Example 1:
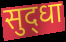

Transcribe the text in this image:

सुद्धा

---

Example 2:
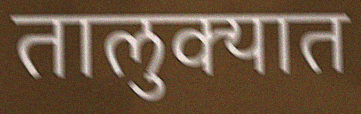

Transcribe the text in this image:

तालुक्यात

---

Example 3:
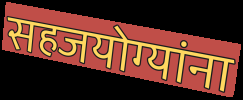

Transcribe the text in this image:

सहजयोग्यांना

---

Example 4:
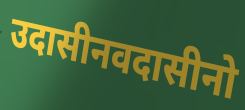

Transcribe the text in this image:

उदासीनवदासीनो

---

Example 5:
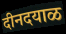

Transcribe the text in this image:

दीनदयाळ